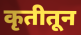
कृतीतून